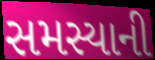
સમસ્યાની